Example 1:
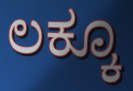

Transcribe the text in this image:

ಲಕ್ಕೂ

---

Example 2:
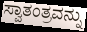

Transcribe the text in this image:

ಸ್ವಾತಂತ್ರವನ್ನು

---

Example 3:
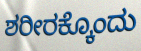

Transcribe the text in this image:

ಶರೀರಕ್ಕೊಂದು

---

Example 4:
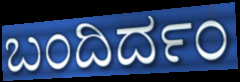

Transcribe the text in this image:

ಬಂದಿರ್ದಂ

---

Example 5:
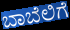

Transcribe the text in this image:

ಬಾಬೆಲಿಗೆ